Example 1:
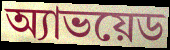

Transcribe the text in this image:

অ্যাভয়েড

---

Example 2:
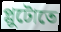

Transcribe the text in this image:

প্লুটোতে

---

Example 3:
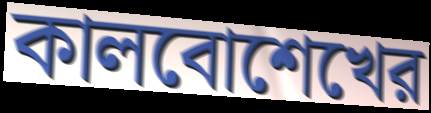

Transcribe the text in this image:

কালবোশেখের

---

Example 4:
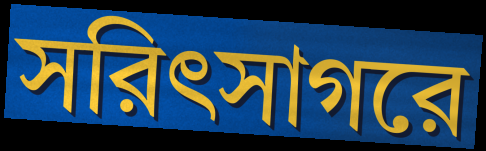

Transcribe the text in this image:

সরিৎসাগরে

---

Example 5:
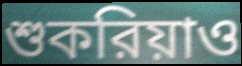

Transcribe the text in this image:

শুকরিয়াও